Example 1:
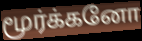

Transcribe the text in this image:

மூர்க்கனோ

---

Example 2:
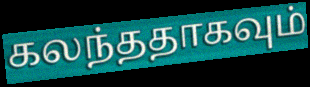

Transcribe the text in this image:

கலந்ததாகவும்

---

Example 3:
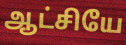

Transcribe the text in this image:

ஆட்சியே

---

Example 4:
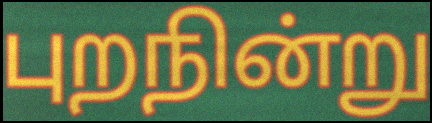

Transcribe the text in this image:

புறநின்று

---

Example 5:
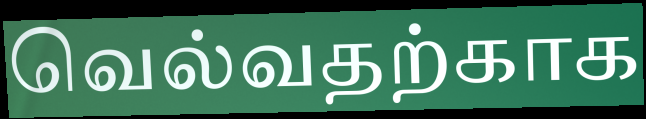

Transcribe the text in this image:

வெல்வதற்காக